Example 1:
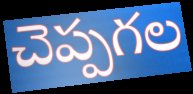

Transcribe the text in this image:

చెప్పగల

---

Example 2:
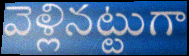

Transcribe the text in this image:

వెళ్లినట్టుగా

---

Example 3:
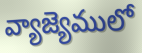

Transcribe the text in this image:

వ్యాజ్యెములో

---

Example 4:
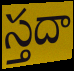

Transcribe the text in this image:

స్తదా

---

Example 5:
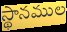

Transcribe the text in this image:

స్థానముల